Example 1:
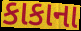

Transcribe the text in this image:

કાકાના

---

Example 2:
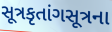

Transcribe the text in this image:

સૂત્રકૃતાંગસૂત્રના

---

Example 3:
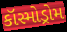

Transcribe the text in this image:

કૉસ્મોડ્રોમ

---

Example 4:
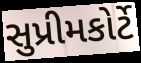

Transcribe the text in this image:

સુપ્રીમકોર્ટે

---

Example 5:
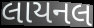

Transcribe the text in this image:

લાયનલ